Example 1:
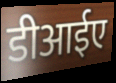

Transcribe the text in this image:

डीआईए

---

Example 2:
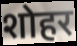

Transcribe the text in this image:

शोहर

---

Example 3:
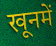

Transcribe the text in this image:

खूनमें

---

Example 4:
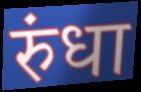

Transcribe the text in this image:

रुंधा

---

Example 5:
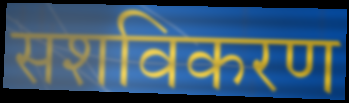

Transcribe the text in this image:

सशविकरण